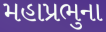
મહાપ્રભુના